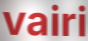
vairi